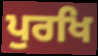
ਪੁਰਖਿ